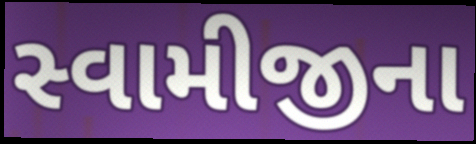
સ્વામીજીના